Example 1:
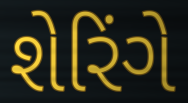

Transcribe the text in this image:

શેરિંગે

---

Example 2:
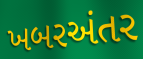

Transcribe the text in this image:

ખબરઅંતર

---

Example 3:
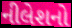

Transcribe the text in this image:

નીલેશનો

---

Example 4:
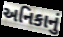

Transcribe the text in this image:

અનિકાનું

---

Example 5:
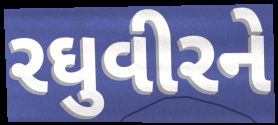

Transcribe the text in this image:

રઘુવીરને